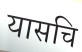
यासचि